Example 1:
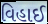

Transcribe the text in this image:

વિહાઈ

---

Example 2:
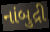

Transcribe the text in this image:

નાંબુદ્રી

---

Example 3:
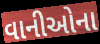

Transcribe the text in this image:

વાનીઓના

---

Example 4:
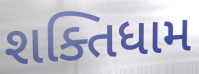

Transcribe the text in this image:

શક્તિધામ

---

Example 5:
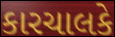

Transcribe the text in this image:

કારચાલકે